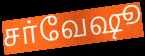
சர்வேஷூ